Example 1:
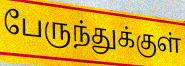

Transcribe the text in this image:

பேருந்துக்குள்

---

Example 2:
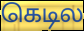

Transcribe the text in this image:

கெடில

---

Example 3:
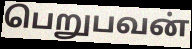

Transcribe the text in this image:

பெறுபவன்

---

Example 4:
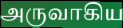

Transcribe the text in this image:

அருவாகிய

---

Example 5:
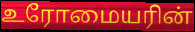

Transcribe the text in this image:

உரோமையரின்